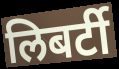
लिबर्टी